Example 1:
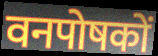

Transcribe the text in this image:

वनपोषकों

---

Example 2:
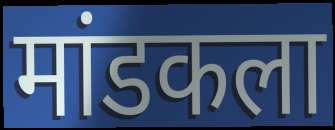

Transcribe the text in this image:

मांडकला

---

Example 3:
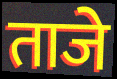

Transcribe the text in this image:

ताजे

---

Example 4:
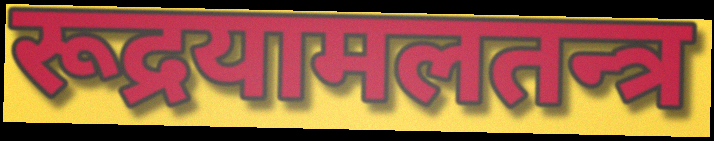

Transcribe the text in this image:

रूद्रयामलतन्त्र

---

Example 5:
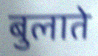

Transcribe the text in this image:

बुलाते